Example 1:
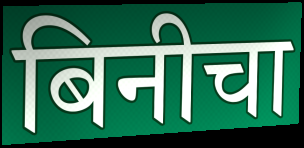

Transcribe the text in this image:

बिनीचा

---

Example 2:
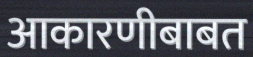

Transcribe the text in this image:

आकारणीबाबत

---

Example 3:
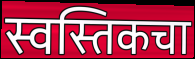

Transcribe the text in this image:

स्वस्तिकचा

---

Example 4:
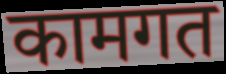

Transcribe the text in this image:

कामगत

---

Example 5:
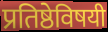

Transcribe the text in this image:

प्रतिष्ठेविषयी